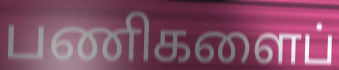
பணிகளைப்